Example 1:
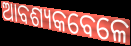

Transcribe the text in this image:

ଆବଶ୍ୟକବେଳେ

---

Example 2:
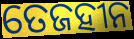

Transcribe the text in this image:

ତେଜହୀନ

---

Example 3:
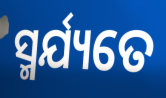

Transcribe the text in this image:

ସ୍ମର୍ଯ୍ୟତେ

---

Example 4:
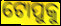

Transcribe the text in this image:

ଟୋପୁକୁ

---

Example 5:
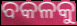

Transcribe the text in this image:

ବକଳକୁ